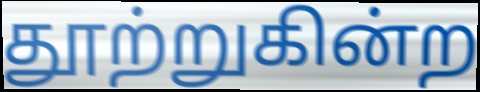
தூற்றுகின்ற